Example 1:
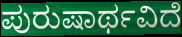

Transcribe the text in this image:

ಪುರುಷಾರ್ಥವಿದೆ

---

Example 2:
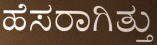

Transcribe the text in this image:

ಹೆಸರಾಗಿತ್ತು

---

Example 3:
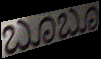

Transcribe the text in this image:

ಬೂಬೂ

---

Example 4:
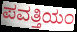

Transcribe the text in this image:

ಪವತ್ತಿಯಂ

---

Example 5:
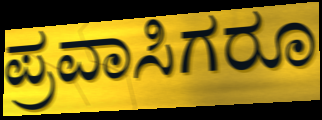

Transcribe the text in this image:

ಪ್ರವಾಸಿಗರೂ